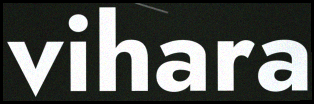
vihara